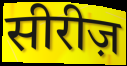
सीरीज़